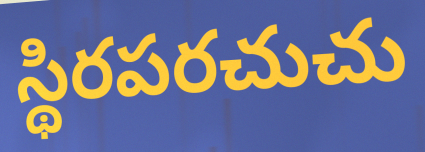
స్థిరపరచుచు